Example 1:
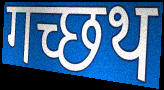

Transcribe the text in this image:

गच्छथ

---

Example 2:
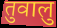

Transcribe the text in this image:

तुवालु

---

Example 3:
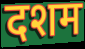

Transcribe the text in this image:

दशम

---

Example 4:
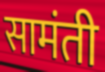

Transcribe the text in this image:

सामंती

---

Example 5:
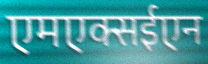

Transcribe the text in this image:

एमएक्सईएन